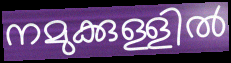
നമുക്കുള്ളിൽ